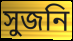
সুজনি